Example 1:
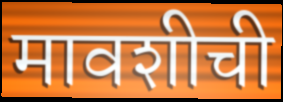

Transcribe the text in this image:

मावशीची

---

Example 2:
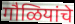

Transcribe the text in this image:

गौळियांचे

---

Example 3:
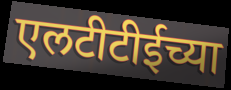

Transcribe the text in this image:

एलटीटीईच्या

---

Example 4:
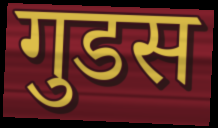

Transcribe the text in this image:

गुडस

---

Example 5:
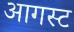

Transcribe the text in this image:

आगस्ट